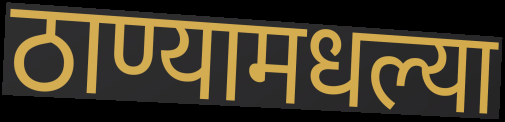
ठाण्यामधल्या